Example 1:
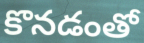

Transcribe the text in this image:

కొనడంతో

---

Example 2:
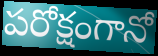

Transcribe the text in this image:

పరోక్షంగానో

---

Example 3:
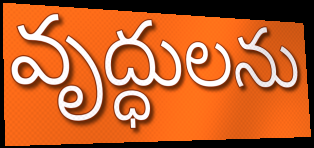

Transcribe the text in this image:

వృద్ధులను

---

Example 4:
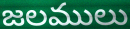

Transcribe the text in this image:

జలములు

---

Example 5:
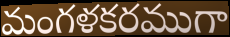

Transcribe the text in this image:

మంగళకరముగా